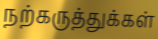
நற்கருத்துக்கள்